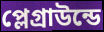
প্লেগ্রাউন্ডে